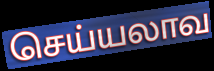
செய்யலாவ